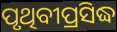
ପୃଥିବୀପ୍ରସିଦ୍ଧ